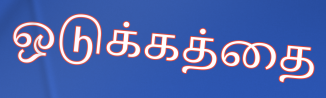
ஒடுக்கத்தை